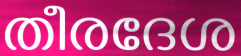
തീരദേശ